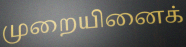
முறையினைக்